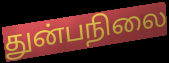
துன்பநிலை